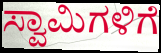
ಸ್ವಾಮಿಗಳಿಗೆ